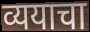
व्ययाचा